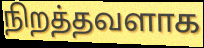
நிறத்தவளாக